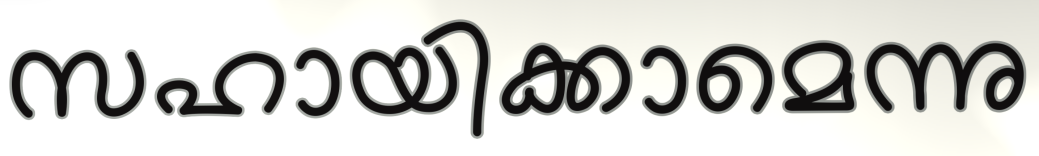
സഹായിക്കാമെന്നു